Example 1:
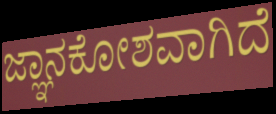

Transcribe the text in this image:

ಜ್ಞಾನಕೋಶವಾಗಿದೆ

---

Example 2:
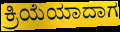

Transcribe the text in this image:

ಕ್ರಿಯೆಯಾದಾಗ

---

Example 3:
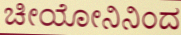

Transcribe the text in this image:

ಚೀಯೋನಿನಿಂದ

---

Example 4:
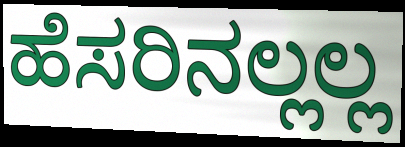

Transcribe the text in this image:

ಹೆಸರಿನಲ್ಲಲ್ಲ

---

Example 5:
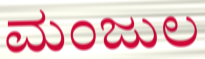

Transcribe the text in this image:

ಮಂಜುಲ